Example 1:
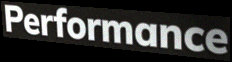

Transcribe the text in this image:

Performance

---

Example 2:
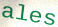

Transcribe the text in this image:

ales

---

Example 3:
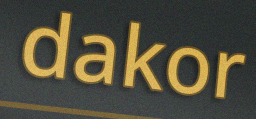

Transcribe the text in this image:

dakor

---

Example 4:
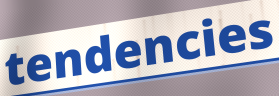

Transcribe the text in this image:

tendencies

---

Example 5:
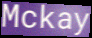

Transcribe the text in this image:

Mckay